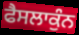
ਫੈਸਲਾਕੁੰਨ